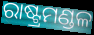
ରାଷ୍ଟ୍ରମଣ୍ଡଳ